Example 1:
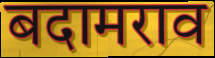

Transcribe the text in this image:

बदामराव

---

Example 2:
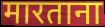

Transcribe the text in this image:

मारताना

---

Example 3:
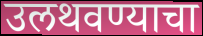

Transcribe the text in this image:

उलथवण्याचा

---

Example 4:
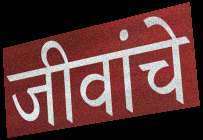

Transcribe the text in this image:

जीवांचे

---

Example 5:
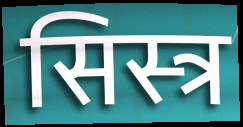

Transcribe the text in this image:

सिस्त्र